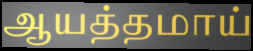
ஆயத்தமாய்